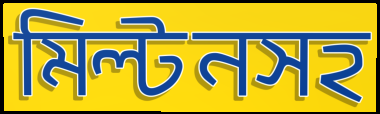
মিল্টনসহ